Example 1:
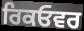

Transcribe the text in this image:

ਰਿਕਓਵਰ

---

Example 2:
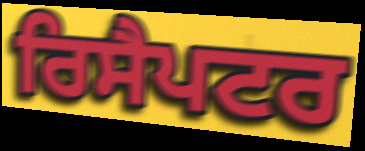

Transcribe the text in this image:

ਰਿਸੈਪਟਰ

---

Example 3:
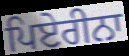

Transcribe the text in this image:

ਪਿਏਰੀਨਾ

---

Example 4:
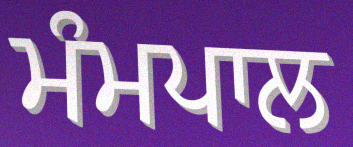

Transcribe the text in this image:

ਮੰਮਪਾਲ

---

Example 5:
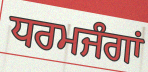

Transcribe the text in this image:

ਧਰਮਜੰਗਾਂ